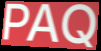
PAQ